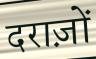
दराज़ों